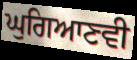
ਘੁਗਿਆਣਵੀ